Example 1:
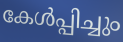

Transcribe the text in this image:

കേൾപ്പിച്ചും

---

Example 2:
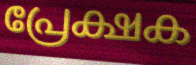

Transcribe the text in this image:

പ്രേക്ഷക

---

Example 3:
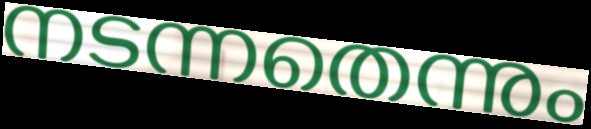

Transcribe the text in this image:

നടന്നതെന്നും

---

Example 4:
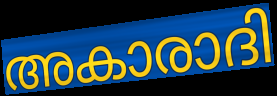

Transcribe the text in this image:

അകാരാദി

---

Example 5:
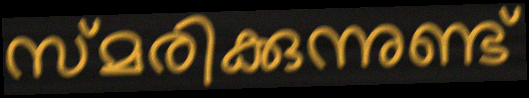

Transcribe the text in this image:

സ്മരിക്കുന്നുണ്ട്